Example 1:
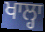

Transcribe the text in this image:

ਖਾਲ੍ਹਾ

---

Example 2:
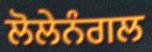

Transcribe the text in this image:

ਲੋਲੇਨੰਗਲ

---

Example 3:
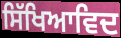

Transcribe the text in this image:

ਸਿੱਖਿਆਵਿਦ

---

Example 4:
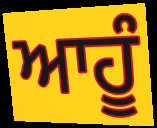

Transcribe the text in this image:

ਆਹੂੰ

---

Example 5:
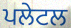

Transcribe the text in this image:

ਪਲੇਟਲ